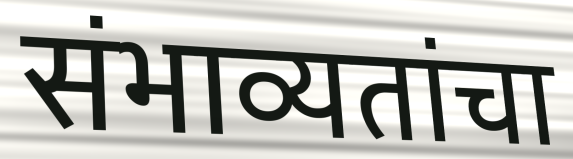
संभाव्यतांचा